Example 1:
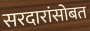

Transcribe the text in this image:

सरदारांसोबत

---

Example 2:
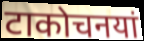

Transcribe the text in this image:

टाकोचनयां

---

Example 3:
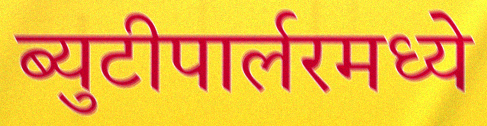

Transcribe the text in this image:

ब्युटीपार्लरमध्ये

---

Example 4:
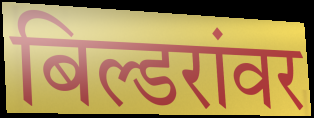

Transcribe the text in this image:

बिल्डरांवर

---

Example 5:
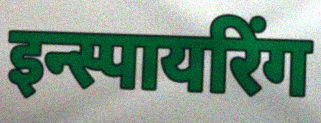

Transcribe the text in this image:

इन्स्पायरिंग